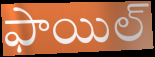
ఫాయిల్